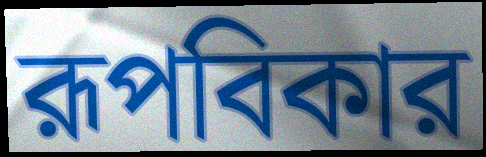
রূপবিকার